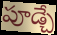
పూడ్చే